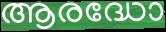
ആരദ്ധോ